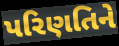
પરિણતિને